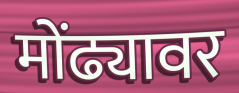
मोंढ्यावर